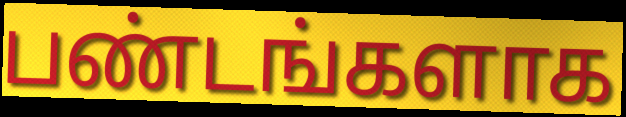
பண்டங்களாக